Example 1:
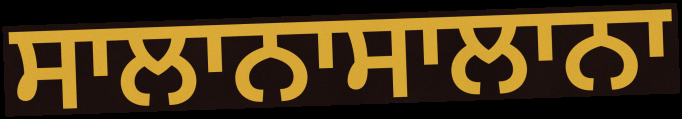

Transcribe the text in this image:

ਸਾਲਾਨਾਸਾਲਾਨਾ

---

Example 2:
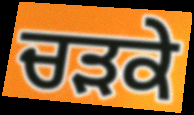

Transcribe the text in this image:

ਚੜਕੇ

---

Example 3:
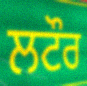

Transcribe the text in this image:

ਲਟੌਰ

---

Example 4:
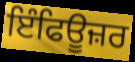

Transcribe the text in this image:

ਇੰਫਿਊਜ਼ਰ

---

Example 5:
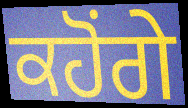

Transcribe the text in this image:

ਕਹੋਂਗੇ